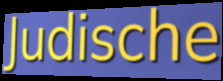
Judische